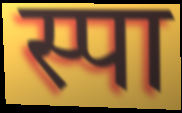
स्पा